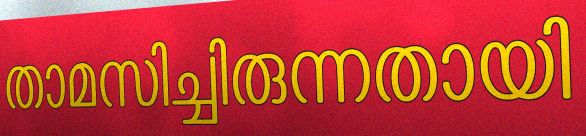
താമസിച്ചിരുന്നതായി